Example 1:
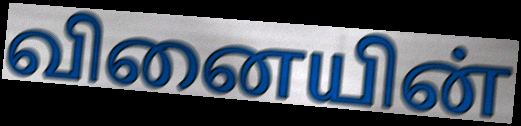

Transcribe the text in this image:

வினையின்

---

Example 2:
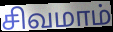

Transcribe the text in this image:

சிவமாம்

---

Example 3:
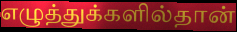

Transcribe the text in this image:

எழுத்துக்களில்தான்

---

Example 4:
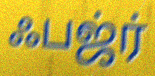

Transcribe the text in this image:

ஃபஜ்ர்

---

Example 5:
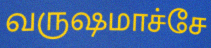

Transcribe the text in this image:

வருஷமாச்சே